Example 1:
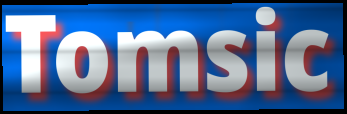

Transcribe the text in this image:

Tomsic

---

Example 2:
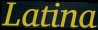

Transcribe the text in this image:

Latina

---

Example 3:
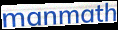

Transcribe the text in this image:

manmath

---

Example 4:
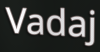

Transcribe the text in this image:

Vadaj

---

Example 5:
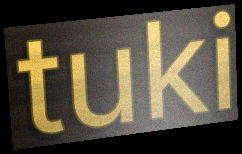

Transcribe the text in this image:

tuki